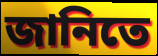
জানিতে